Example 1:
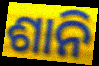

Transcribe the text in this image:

ଶାନି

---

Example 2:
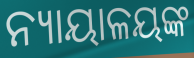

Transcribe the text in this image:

ନ୍ୟାୟାଳୟଙ୍କ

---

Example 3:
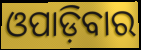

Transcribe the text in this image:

ଓପାଡ଼ିବାର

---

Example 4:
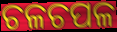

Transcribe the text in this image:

ଚଳଚପଳ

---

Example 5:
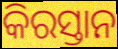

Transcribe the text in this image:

କିରସ୍ତାନ